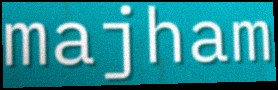
majham